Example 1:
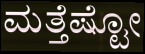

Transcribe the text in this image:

ಮತ್ತೆಷ್ಟೋ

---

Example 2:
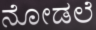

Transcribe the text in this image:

ನೋಡಲೆ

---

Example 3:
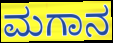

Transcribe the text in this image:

ಮಗಾನ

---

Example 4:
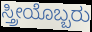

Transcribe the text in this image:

ಸ್ತ್ರೀಯೊಬ್ಬರು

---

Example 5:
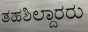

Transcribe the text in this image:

ತಹಶಿಲ್ದಾರರು